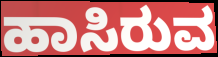
ಹಾಸಿರುವ